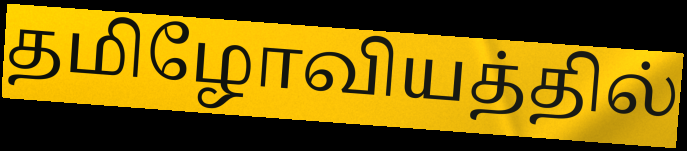
தமிழோவியத்தில்